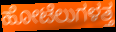
ಹೋಟೆಲುಗಳತ್ತ